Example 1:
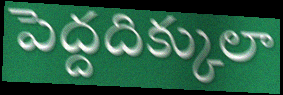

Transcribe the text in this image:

పెద్దదిక్కులా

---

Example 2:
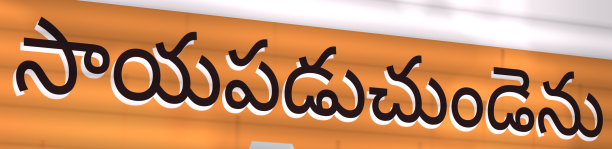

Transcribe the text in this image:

సాయపడుచుండెను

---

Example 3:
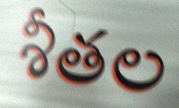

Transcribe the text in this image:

శీతల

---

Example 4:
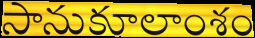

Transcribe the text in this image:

సానుకూలాంశం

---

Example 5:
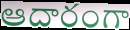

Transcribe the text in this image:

ఆదారంగా